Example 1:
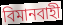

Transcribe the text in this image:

বিমানবাহী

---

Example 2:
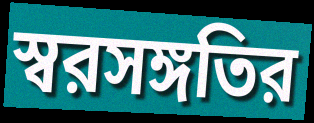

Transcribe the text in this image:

স্বরসঙ্গতির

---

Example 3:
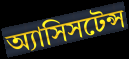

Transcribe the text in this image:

অ্যাসিসটেন্স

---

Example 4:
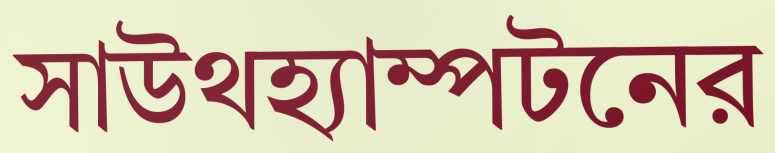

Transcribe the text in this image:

সাউথহ্যাম্পটনের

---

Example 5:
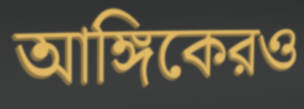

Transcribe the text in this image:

আঙ্গিকেরও